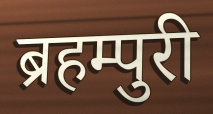
ब्रहम्पुरी